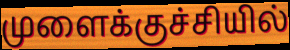
முளைக்குச்சியில்